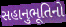
સહાનુભૂતિનો